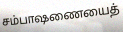
சம்பாஷணையைத்